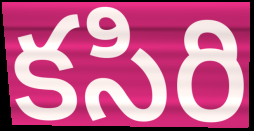
కసిరి